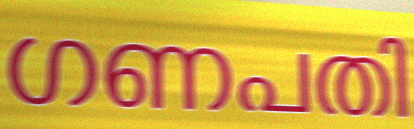
ഗണപതി